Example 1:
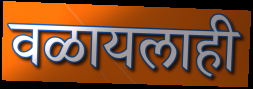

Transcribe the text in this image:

वळायलाही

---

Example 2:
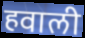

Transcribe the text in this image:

हवाली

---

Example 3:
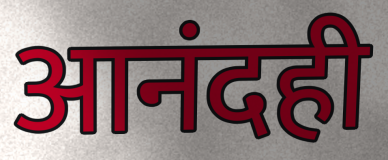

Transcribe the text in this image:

आनंदही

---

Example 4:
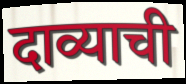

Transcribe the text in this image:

दाव्याची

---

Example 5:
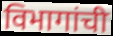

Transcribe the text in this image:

विभागांची